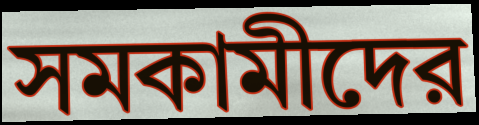
সমকামীদের